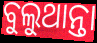
ବୁଲୁଥାନ୍ତା